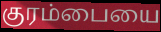
குரம்பையை